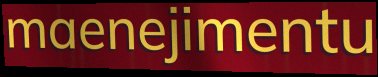
maenejimentu